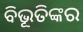
ବିଭୂତିଙ୍କର